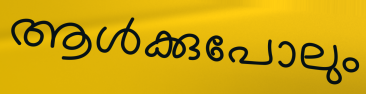
ആൾക്കുപോലും